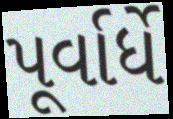
પૂર્વાર્ધે